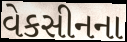
વેકસીનના